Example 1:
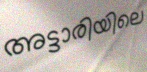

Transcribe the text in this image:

അട്ടാരിയിലെ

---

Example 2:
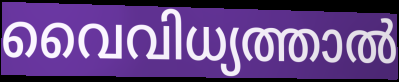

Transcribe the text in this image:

വൈവിധ്യത്താൽ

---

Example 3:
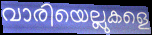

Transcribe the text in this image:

വാരിയെല്ലുകളെ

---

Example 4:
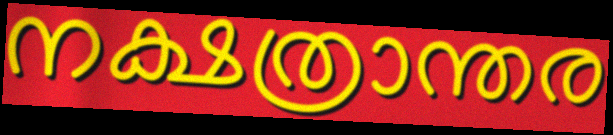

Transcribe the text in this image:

നക്ഷത്രാന്തര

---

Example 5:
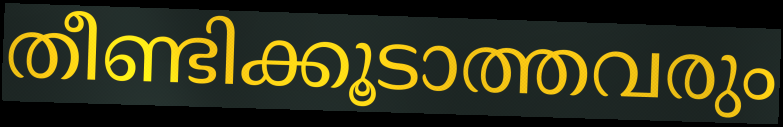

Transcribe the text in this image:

തീണ്ടിക്കൂടാത്തവരും